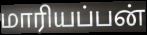
மாரியப்பன்